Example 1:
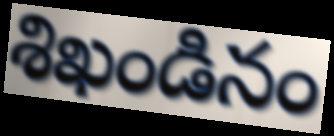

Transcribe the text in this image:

శిఖండినం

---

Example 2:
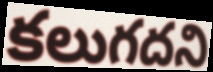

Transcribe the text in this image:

కలుగదని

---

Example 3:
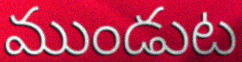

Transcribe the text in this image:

ముండుట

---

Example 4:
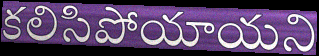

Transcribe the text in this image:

కలిసిపోయాయని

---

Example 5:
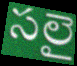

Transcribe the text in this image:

సలై